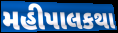
મહીપાલકથા